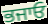
ਭਜਾਓ